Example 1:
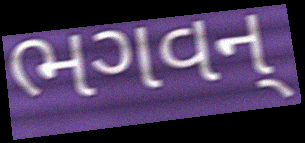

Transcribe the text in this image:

ભગવન્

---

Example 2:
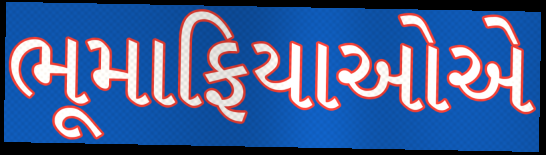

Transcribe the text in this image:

ભૂમાફિયાઓએ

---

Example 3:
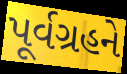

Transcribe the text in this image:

પૂર્વગ્રહને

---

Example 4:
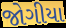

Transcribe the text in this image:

જોગીયા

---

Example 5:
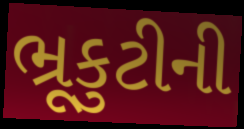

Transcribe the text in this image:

ભ્રૂકુટીની